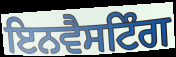
ਇਨਵੈਸਟਿੰਗ